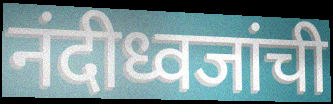
नंदीध्वजांची